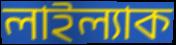
লাইল্যাক